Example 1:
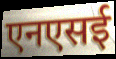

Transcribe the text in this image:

एनएसई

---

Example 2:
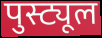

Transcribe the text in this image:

पुस्ट्यूल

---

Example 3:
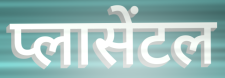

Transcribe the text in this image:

प्लासेंटल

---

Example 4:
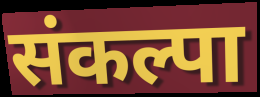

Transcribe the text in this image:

संकल्पा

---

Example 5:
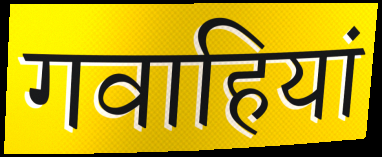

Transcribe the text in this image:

गवाहियां